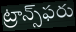
ట్రాన్స్‌ఫరు